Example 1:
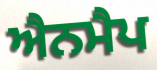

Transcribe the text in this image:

ਐਨਮੈਪ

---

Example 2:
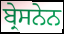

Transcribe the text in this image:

ਬ੍ਰੇਸਨੇਨ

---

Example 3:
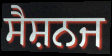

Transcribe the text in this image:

ਸੈਸ਼ਨਜ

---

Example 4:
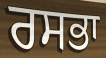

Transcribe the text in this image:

ਰਸਭਾ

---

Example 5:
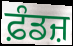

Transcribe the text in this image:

ਫ਼ੰਡਜ਼